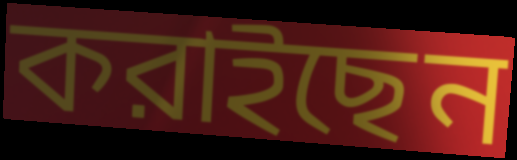
করাইছেন